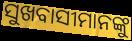
ସୁଖବାସୀମାନଙ୍କୁ